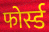
फोर्स्ड